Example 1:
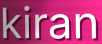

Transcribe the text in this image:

kiran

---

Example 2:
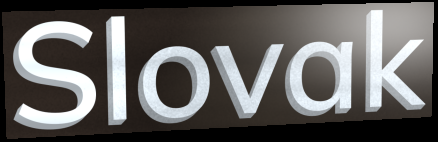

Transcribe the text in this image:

Slovak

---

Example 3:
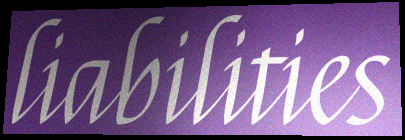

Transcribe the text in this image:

liabilities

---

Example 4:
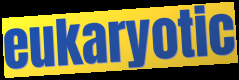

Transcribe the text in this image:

eukaryotic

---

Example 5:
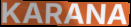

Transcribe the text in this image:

KARANA